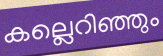
കല്ലെറിഞ്ഞും